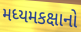
મધ્યમકક્ષાનો